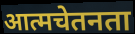
आत्मचेतनता